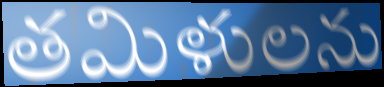
తమిళులను